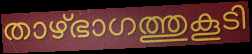
താഴ്ഭാഗത്തുകൂടി